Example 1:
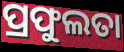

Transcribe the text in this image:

ପ୍ରଫୁଲତା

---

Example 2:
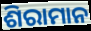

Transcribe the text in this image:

ଶିରାମାନ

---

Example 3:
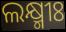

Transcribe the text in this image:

ଲକ୍ଷ୍ମୀଃ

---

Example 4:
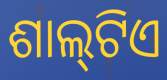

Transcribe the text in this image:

ଶାଲ୍‌ଟିଏ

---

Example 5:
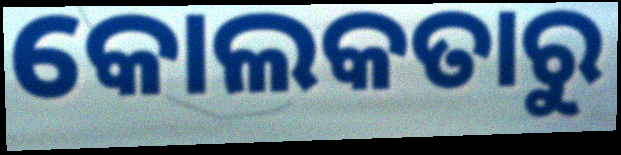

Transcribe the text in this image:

କୋଲକତାରୁ